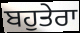
ਬਹੁਤੇਰਾ